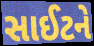
સાઈટને